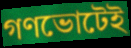
গণভোটেই